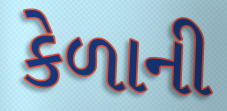
કેળાની